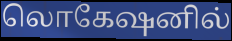
லொகேஷனில்